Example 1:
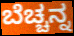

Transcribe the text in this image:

ಬೆಚ್ಚನ್ನ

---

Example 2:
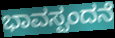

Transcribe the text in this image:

ಭಾವಸ್ಪಂದನೆ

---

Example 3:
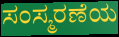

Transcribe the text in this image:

ಸಂಸ್ಮರಣೆಯ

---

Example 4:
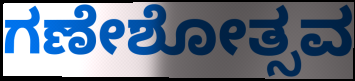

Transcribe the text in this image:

ಗಣೇಶೋತ್ಸವ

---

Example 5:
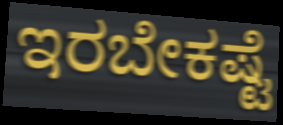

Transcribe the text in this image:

ಇರಬೇಕಷ್ಟೆ